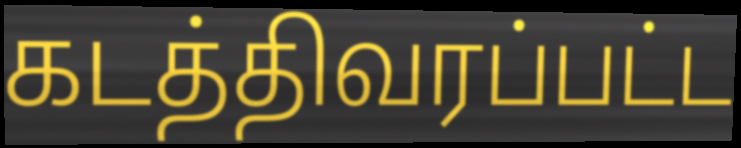
கடத்திவரப்பட்ட